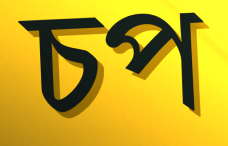
চপ